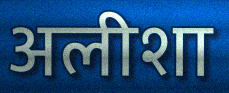
अलीशा